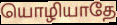
யொழியாதே